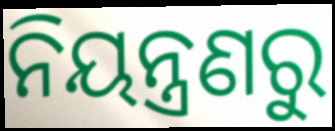
ନିୟନ୍ତ୍ରଣରୁ